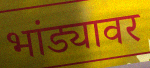
भांड्यावर